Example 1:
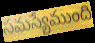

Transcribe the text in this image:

సమస్యేముంది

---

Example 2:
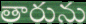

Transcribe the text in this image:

తారును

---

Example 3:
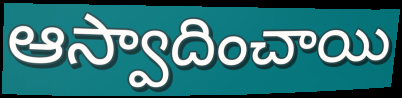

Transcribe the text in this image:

ఆస్వాదించాయి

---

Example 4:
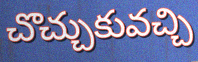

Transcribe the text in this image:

చొచ్చుకువచ్చి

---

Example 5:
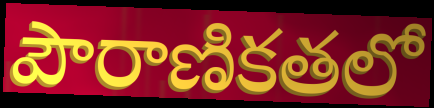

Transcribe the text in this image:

పౌరాణికతలో